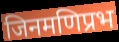
जिनमणिप्रभ